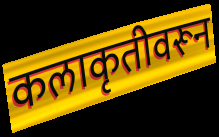
कलाकृतीवरून